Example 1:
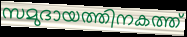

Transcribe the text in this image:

സമുദായത്തിനകത്ത്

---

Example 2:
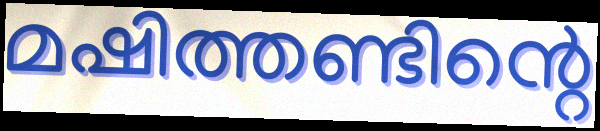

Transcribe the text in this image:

മഷിത്തണ്ടിന്റെ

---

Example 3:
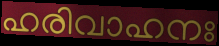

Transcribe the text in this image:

ഹരിവാഹനഃ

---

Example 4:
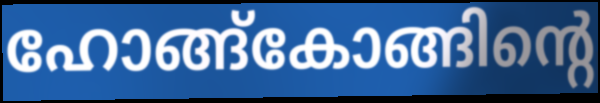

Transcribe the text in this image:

ഹോങ്ങ്കോങ്ങിന്റെ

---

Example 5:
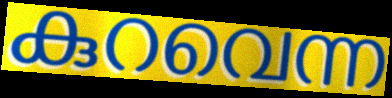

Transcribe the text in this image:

കുറവെന്ന